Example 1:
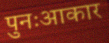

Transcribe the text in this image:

पुनःआकार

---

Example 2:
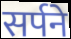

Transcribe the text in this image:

सर्पने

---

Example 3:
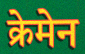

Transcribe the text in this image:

क्रेमेन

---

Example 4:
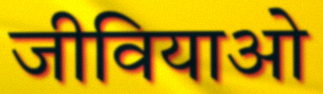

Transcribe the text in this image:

जीवियाओ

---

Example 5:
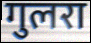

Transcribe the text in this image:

गुलरा